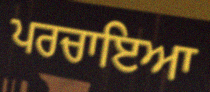
ਪਰਚਾਇਆ